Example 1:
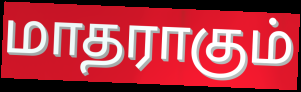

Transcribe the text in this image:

மாதராகும்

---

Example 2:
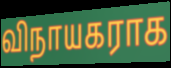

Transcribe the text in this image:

விநாயகராக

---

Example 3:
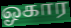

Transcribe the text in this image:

ஓகார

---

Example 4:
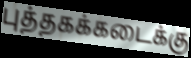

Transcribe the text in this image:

புத்தகக்கடைக்கு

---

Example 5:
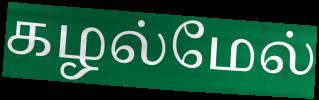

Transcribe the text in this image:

கழல்மேல்